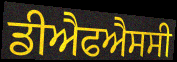
ਡੀਐਫਐਸਸੀ